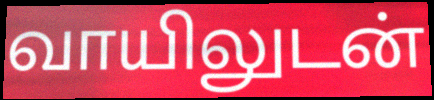
வாயிலுடன்